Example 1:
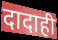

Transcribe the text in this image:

दादाही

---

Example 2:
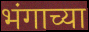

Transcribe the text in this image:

भंगाच्या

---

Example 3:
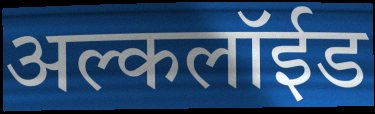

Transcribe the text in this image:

अल्कलॉईड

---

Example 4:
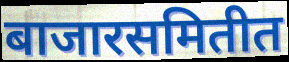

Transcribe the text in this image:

बाजारसमितीत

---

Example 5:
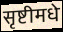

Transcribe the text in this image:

सृष्टीमधे